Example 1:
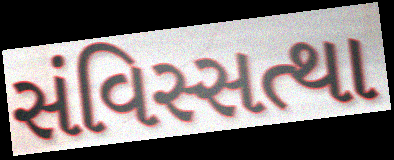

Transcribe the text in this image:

સંવિસ્સત્થા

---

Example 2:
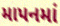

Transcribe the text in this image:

માપનમાં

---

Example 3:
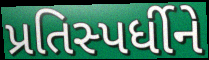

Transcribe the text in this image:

પ્રતિસ્પર્ધીને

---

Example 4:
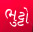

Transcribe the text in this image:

ભુટ્ટો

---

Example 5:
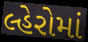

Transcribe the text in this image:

લ્હેરોમાં